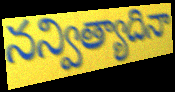
నన్విత్యాదినా